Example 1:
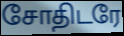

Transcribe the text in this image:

சோதிடரே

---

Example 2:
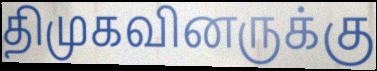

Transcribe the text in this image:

திமுகவினருக்கு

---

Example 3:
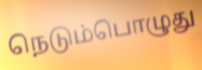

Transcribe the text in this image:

நெடும்பொழுது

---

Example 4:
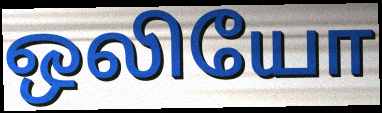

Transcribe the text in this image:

ஒலியோ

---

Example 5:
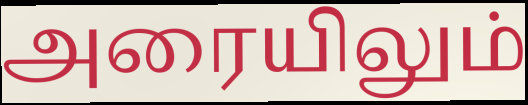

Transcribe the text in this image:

அரையிலும்